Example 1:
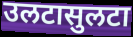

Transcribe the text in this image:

उलटासुलटा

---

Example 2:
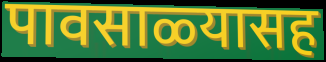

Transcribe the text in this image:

पावसाळ्यासह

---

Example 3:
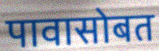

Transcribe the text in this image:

पावासोबत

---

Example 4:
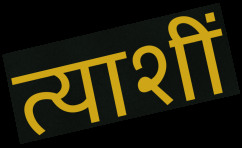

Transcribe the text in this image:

त्याशीं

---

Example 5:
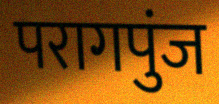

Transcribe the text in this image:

परागपुंज